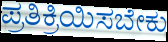
ಪ್ರತಿಕ್ರಿಯಿಸಬೇಕು